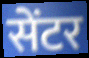
सेंटर